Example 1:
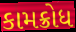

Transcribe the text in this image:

કામક્રોધ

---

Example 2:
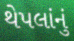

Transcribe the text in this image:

થેપલાંનું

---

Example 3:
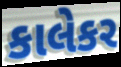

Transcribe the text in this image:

કાલેકર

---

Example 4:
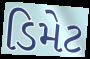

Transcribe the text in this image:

ડિમેટ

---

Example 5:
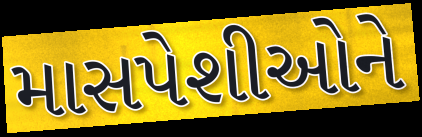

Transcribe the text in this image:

માસપેશીઓને